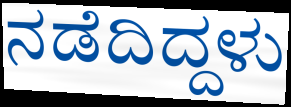
ನಡೆದಿದ್ದಳು